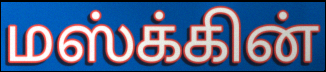
மஸ்க்கின்